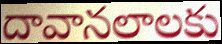
దావానలాలకు